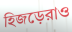
হিজড়েরাও